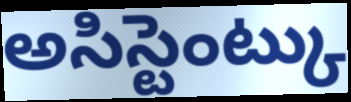
అసిస్టెంట్కు